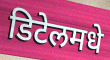
डिटेलमधे